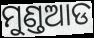
ମୁଣ୍ଡଆଡ